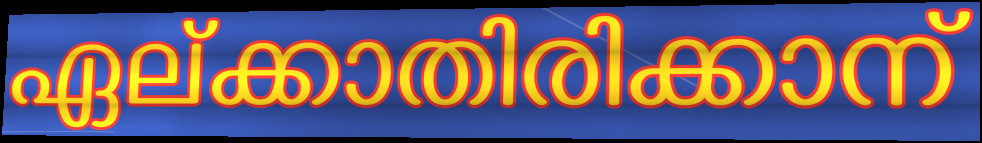
ഏല്ക്കാതിരിക്കാന്